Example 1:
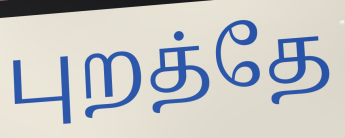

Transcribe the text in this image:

புறத்தே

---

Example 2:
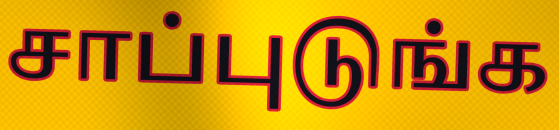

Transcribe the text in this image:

சாப்புடுங்க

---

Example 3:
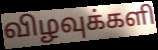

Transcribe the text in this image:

விழவுக்களி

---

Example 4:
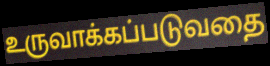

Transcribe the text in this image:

உருவாக்கப்படுவதை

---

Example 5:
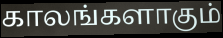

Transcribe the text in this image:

காலங்களாகும்